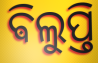
ଵିଲୁପ୍ତି